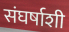
संघर्षाशी